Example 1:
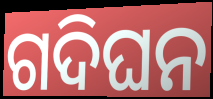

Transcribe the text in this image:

ଗଦିଘନ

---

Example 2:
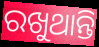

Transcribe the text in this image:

ରଖୁଥାନ୍ତି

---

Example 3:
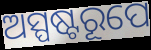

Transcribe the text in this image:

ଅସ୍ପଷ୍ଟରୂପେ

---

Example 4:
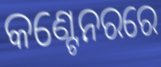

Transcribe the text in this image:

କଣ୍ଟେନରରେ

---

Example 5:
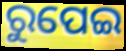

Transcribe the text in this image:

ରୁପେଇ